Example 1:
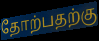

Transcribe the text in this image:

தோற்பதற்கு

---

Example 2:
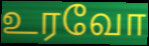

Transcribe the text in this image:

உரவோ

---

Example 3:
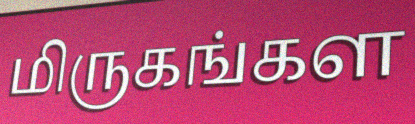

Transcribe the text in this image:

மிருகங்கள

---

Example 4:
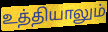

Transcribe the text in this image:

உத்தியாலும்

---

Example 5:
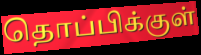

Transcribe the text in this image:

தொப்பிக்குள்